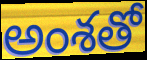
అంశతో